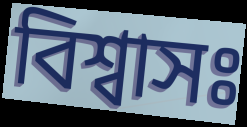
বিশ্বাসঃ